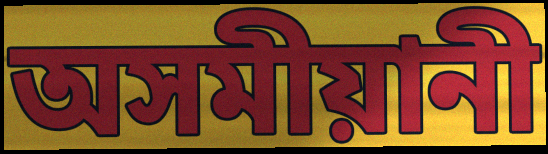
অসমীয়ানী